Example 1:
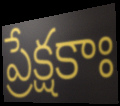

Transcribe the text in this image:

ప్రేక్షకాః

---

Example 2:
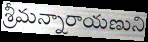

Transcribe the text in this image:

శ్రీమన్నారాయణుని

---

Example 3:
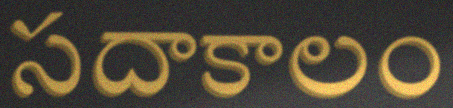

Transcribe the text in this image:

సదాకాలం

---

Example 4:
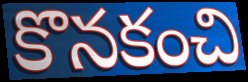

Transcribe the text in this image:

కొనకంచి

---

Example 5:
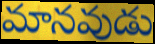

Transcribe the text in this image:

మానవుడు